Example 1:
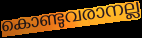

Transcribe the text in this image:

കൊണ്ടുവരാനല്ല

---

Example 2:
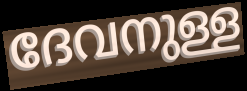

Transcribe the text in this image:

ദേവനുള്ള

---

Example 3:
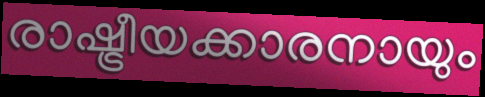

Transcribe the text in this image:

രാഷ്ട്രീയക്കാരനായും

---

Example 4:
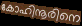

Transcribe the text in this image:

കോഹിനൂരിനെ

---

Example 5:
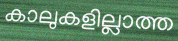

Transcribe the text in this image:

കാലുകളില്ലാത്ത